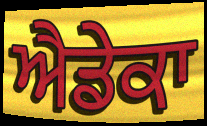
ਐਡੇਕਾ